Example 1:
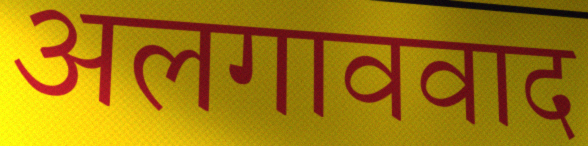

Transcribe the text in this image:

अलगाववाद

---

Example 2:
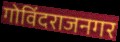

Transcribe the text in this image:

गोविंदराजनगर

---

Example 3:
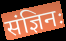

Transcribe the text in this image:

संज्ञिनः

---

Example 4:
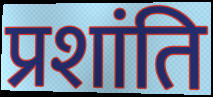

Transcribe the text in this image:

प्रशांति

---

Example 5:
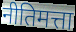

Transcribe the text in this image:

नीतिमत्ता